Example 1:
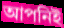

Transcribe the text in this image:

আপনিই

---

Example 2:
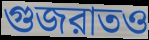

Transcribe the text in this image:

গুজরাতও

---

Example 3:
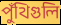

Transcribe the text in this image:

পুঁথিগুলি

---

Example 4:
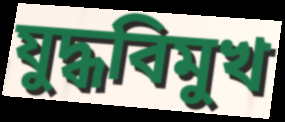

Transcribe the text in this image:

যুদ্ধবিমুখ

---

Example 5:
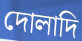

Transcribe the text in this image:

দোলাদি